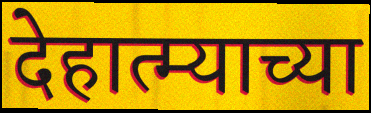
देहात्म्याच्या